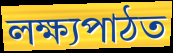
লক্ষ্যপাঠত